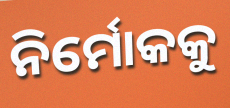
ନିର୍ମୋକକୁ